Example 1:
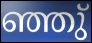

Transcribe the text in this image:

ഞ്ഞു്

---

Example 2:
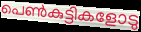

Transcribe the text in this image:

പെൺകുട്ടികളോടു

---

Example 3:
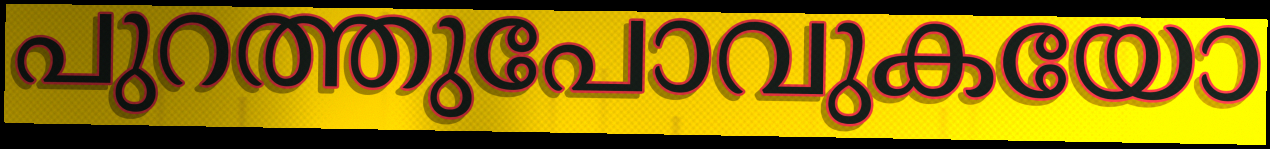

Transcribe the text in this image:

പുറത്തുപോവുകയോ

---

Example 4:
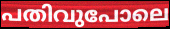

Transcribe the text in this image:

പതിവുപോലെ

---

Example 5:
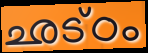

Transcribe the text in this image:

ഛട്ഠം